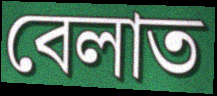
বেলাত